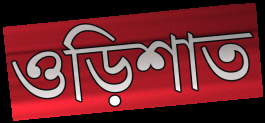
ওড়িশাত